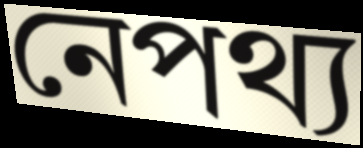
নেপথ্য